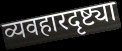
व्यवहारदृष्ट्या